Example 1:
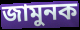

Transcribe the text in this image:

জামুনক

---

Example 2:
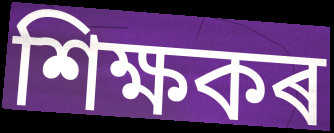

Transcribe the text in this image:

শিক্ষকৰ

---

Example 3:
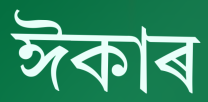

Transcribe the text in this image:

ঈকাৰ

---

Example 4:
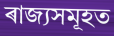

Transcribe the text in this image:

ৰাজ্যসমূহত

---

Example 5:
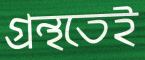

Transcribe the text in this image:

গ্ৰন্থতেই